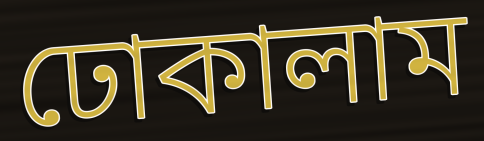
ঢোকালাম